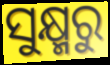
ସୁକ୍ଷ୍ମରୁ